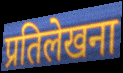
प्रतिलेखना